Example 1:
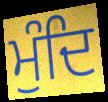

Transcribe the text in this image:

ਮੁੰਦਿ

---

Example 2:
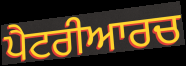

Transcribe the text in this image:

ਪੈਟਰੀਆਰਚ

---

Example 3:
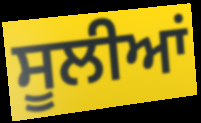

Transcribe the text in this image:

ਸੂਲੀਆਂ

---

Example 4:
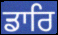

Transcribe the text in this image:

ਡਾਰਿ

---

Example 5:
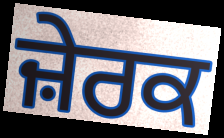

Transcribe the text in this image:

ਜ਼ੇਰਕ